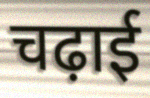
चढ़ाई